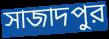
সাজাদপুর